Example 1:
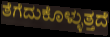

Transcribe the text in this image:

ತೆಗೆದುಕೊಳ್ಳುತ್ತದೆ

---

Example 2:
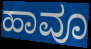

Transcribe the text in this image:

ಹಾವೂ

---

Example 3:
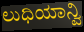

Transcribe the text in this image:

ಲುಧಿಯಾನ್ವಿ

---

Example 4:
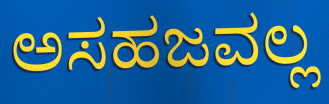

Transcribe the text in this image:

ಅಸಹಜವಲ್ಲ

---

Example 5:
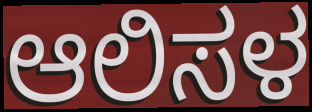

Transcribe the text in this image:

ಆಲಿಸಳ